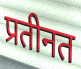
प्रतीनत